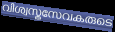
വിശ്വസ്തസേവകരുടെ